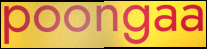
poongaa